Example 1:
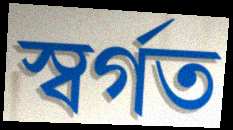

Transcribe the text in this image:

স্বৰ্গত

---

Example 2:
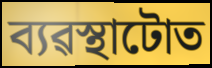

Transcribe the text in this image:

ব্যৱস্থাটোত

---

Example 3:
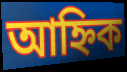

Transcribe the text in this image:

আহ্নিক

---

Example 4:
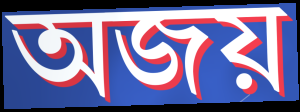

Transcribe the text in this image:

অজয়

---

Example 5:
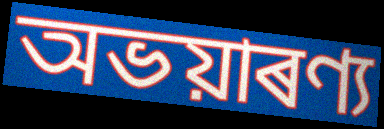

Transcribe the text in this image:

অভয়াৰণ্য